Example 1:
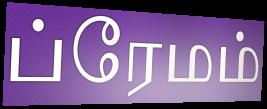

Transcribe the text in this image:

ப்ரேமம்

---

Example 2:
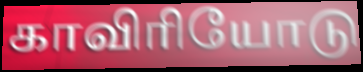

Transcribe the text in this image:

காவிரியோடு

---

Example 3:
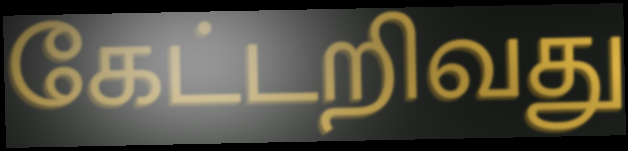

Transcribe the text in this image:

கேட்டறிவது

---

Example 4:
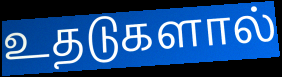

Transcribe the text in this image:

உதடுகளால்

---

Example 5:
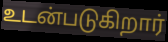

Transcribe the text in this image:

உடன்படுகிறார்